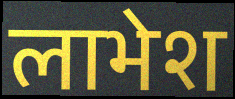
लाभेश